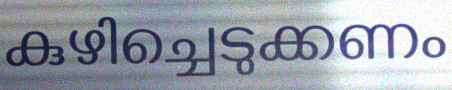
കുഴിച്ചെടുക്കണം